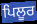
ਪਿਲੂਰ